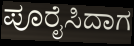
ಪೂರೈಸಿದಾಗ